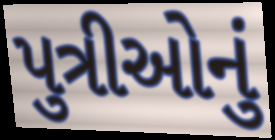
પુત્રીઓનું